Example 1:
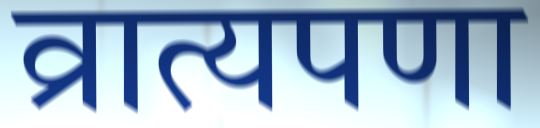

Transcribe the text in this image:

व्रात्यपणा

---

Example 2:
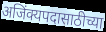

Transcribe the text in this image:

अजिंक्यपदासाठीच्या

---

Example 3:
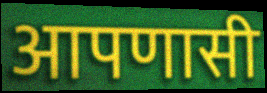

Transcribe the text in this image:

आपणासी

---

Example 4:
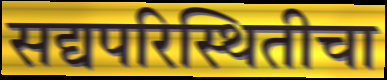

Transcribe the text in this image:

सद्यपरिस्थितीचा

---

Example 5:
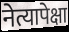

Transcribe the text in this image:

नेत्यापेक्षा